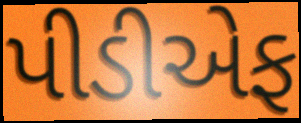
પીડીએફ